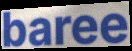
baree